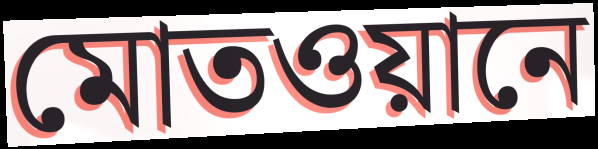
মোতওয়ানে